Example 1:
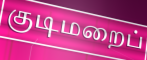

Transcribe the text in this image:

குடிமறைப்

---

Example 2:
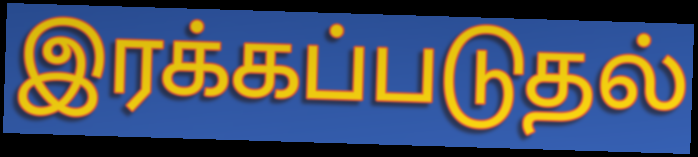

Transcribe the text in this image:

இரக்கப்படுதல்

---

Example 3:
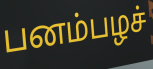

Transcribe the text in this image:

பனம்பழச்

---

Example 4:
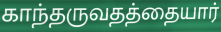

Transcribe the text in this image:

காந்தருவதத்தையார்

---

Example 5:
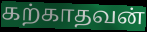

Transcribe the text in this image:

கற்காதவன்